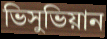
ভিসুভিয়ান